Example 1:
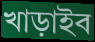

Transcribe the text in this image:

খাড়াইব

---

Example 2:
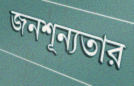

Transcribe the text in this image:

জনশূন্যতার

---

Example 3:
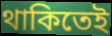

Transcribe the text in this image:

থাকিতেই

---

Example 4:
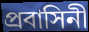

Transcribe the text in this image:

প্রবাসিনী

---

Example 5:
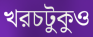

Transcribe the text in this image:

খরচটুকুও